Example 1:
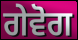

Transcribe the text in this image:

ਗੇਵੋਗ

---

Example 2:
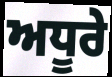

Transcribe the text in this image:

ਅਧੂਰੇ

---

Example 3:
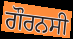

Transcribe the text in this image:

ਗੌਰਨਸੀ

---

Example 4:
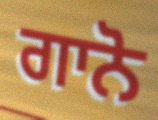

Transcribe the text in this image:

ਗਾਨੋ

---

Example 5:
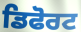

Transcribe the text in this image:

ਡਿਫੋਰਟ